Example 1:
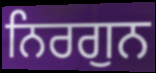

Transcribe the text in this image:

ਨਿਰਗੁਨ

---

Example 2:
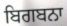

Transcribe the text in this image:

ਬਿਗਬਨਾ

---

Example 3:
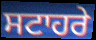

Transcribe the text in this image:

ਸਟਾਹਰੇ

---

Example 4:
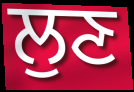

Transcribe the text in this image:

ਲੁਣ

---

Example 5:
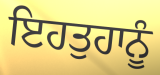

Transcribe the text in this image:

ਇਹਤੁਹਾਨੂੰ